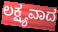
ಲಕ್ಷ್ಯವಾದ